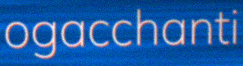
ogacchanti